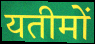
यतीमों